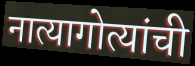
नात्यागोत्यांची